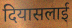
दियासलाई